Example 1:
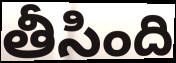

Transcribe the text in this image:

తీసింది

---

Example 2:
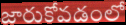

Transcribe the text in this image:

జారుకోవడంలో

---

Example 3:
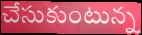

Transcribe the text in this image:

చేసుకుంటున్న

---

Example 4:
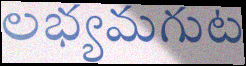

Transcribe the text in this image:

లభ్యమగుట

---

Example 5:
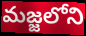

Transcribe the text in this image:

మజ్జలోని